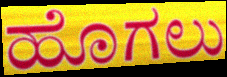
ಹೊಗಲು